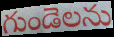
గుండెలను